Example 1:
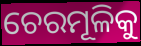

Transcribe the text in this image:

ଚେରମୂଳିକୁ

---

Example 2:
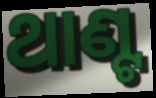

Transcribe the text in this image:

ଥାଣ୍ଟ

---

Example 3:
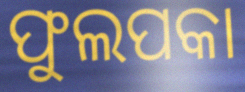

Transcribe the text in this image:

ଫୁଲପକା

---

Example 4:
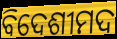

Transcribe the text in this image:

ବିଦେଶୀମଦ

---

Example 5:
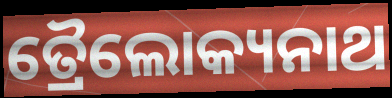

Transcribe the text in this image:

ତ୍ରୈଲୋକ୍ୟନାଥ